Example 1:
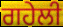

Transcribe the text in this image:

ਗਹੇਲੀ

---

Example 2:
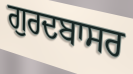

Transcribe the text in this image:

ਗੁਰਦਬਾਸਰ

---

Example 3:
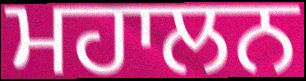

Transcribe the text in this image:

ਮਹਾਲਨ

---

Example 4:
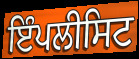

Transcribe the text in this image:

ਇੰਪਲੀਸਿਟ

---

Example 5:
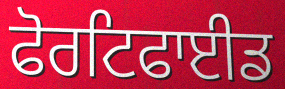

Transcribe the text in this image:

ਫੋਰਟਿਫਾਈਡ